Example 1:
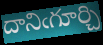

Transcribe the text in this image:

దానిఁగూర్చి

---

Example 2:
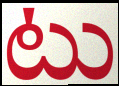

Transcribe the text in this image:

టు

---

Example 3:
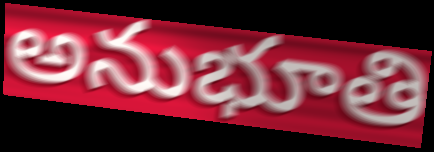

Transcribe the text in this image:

అనుభూతి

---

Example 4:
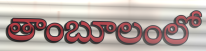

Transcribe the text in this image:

తాంబూలంలో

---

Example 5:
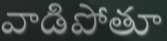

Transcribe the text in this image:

వాడిపోతూ